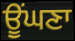
ਊਂਘਣਾ